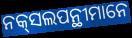
ନକ୍‌ସଲପନ୍ଥୀମାନେ